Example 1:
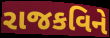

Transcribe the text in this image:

રાજકવિને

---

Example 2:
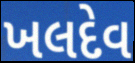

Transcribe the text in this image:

ખલદેવ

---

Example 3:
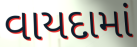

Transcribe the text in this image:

વાયદામાં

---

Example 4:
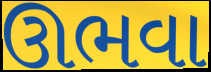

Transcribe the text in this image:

ઊભવા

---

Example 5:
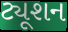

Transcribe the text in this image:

ટ્યૂશન